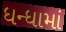
ધન્ધામાં